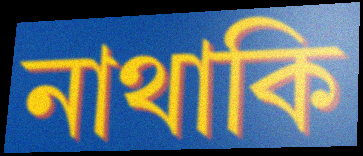
নাথাকি